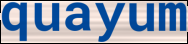
quayum